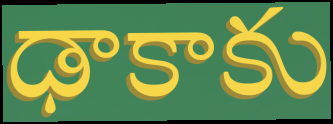
ఢాకాకు